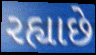
રહ્યાછે